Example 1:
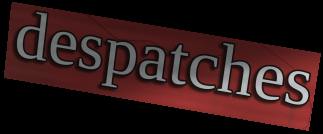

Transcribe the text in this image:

despatches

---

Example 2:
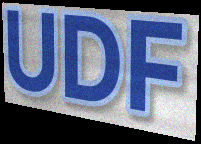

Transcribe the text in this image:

UDF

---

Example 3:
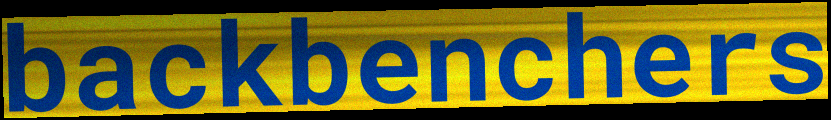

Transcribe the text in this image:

backbenchers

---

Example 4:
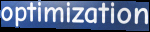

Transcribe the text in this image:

optimization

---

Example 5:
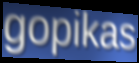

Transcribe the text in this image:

gopikas